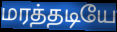
மரத்தடியே